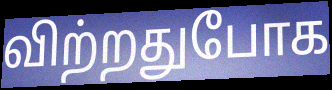
விற்றதுபோக